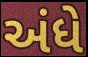
અંધે